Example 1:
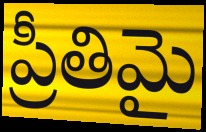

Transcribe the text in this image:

ప్రీతిమై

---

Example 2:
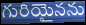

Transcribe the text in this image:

గురియైనను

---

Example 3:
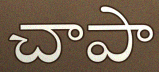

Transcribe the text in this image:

చాపా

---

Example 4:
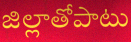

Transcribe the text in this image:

జిల్లాతోపాటు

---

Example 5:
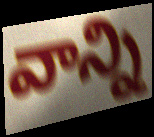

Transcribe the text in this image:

వాన్ని